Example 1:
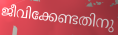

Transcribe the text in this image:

ജീവിക്കേണ്ടതിനു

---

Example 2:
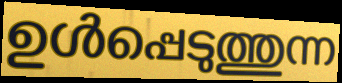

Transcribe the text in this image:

ഉൾപ്പെടുത്തുന്ന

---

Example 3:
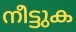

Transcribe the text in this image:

നീട്ടുക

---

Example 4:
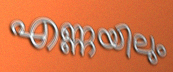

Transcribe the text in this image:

എണ്ണയിലും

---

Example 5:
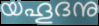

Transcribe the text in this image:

യഹൂദനു